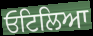
ਓਟਿਲਿਆ